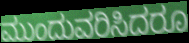
ಮುಂದುವರಿಸಿದರೂ